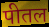
पीतल